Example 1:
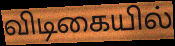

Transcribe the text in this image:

விடிகையில்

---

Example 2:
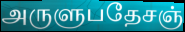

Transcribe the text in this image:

அருளுபதேசஞ்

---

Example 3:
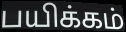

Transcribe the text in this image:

பயிக்கம்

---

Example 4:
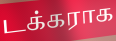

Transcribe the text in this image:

டக்கராக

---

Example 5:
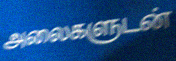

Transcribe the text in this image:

அலைகளுடன்